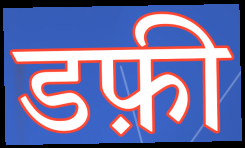
डफ़ी